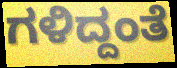
ಗಳಿದ್ದಂತೆ